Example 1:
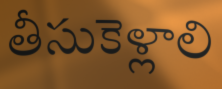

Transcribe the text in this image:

తీసుకెళ్లాలి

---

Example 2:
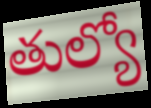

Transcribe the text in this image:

తుల్యో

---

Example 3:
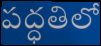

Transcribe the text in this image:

పద్ధతిలో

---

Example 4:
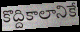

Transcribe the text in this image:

కొద్దికాలానికే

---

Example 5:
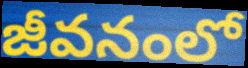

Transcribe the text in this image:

జీవనంలో